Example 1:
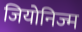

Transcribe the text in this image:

जियोनिज्म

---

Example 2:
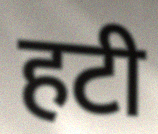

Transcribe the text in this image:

हटी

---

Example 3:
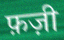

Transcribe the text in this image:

फ़ज़ी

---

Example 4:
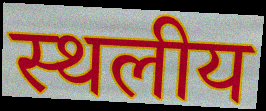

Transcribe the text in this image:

स्थलीय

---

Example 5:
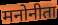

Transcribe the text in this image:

मनोनीता